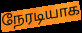
நேரடியாக